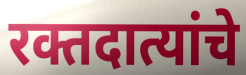
रक्तदात्यांचे